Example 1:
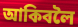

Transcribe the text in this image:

আকিবলৈ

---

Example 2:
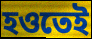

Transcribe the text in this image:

হওতেই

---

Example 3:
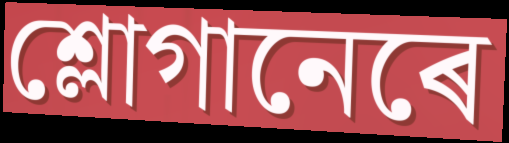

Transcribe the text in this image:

শ্লোগানেৰে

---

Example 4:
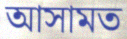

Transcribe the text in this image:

আসামত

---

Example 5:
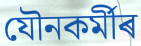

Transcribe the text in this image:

যৌনকৰ্মীৰ